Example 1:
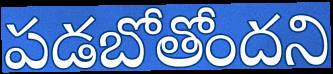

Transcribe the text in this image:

పడబోతోందని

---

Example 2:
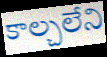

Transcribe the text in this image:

కాల్చలేని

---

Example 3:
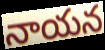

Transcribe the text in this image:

నాయన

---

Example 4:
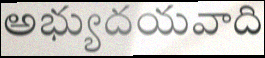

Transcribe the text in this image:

అభ్యుదయవాది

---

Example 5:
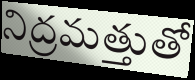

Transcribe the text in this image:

నిద్రమత్తుతో